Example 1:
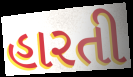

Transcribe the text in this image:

હારતી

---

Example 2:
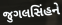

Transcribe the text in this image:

જુગલસિંહને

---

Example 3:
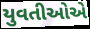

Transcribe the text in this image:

યુવતીઓએ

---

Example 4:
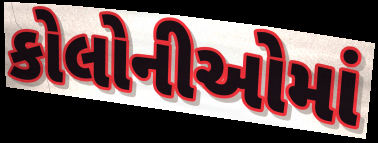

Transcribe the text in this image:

કોલોનીઓમાં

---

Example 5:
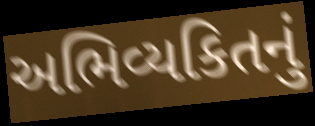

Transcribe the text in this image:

અભિવ્યકિતનું